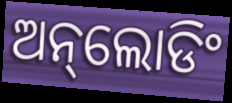
ଅନ୍‌ଲୋଡିଂ